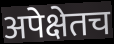
अपेक्षेतच